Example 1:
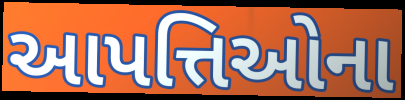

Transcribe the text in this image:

આપત્તિઓના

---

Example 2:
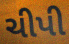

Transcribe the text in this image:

ચીપી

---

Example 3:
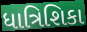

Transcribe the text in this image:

ધાત્રિશિકા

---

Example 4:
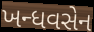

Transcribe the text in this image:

ખન્ધવસેન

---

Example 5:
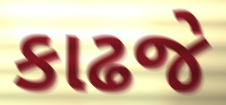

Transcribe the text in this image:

કાઢજે